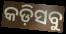
କଡ଼ିସବୁ